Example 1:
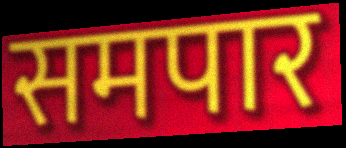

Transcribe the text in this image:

समपार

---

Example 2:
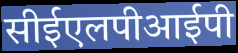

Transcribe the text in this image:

सीईएलपीआईपी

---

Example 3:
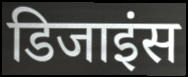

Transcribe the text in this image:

डिजाइंस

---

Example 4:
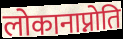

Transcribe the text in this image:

लोकानाप्नोति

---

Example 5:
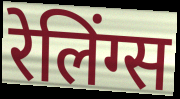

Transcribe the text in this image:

रेलिंग्स